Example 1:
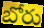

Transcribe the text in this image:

బోరు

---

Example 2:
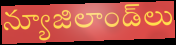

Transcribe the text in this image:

న్యూజిలాండ్‌లు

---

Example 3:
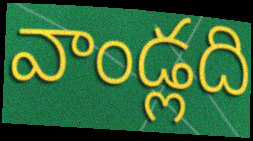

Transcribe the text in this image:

వాండ్లది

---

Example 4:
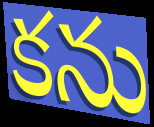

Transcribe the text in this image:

కను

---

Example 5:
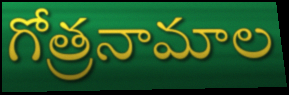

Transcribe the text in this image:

గోత్రనామాల